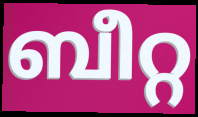
ബീറ്റ